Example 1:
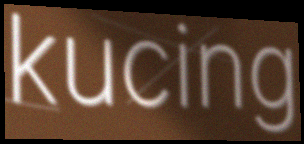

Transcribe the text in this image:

kucing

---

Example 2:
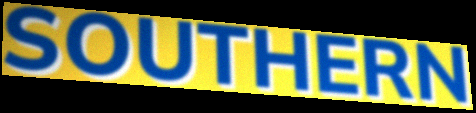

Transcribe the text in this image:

SOUTHERN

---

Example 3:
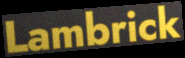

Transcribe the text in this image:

Lambrick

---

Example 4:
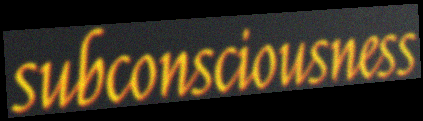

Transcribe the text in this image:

subconsciousness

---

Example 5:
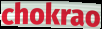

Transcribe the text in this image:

chokrao